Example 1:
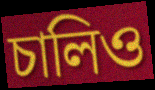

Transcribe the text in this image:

চালিও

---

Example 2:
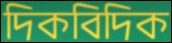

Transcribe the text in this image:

দিকবিদিক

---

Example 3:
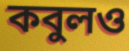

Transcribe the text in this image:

কবুলও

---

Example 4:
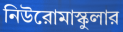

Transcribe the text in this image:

নিউরোমাস্কুলার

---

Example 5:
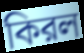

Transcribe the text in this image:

কিরল